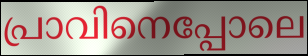
പ്രാവിനെപ്പോലെ